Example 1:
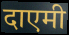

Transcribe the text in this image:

दाएमी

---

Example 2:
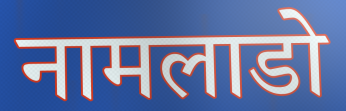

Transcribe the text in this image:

नामलाडो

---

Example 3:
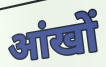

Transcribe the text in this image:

आंखों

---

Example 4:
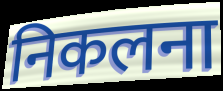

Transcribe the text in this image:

निकलना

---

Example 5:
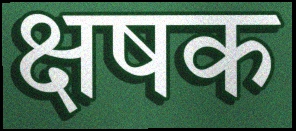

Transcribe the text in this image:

क्षषक